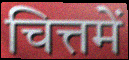
चित्तमें